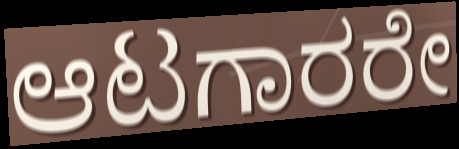
ಆಟಗಾರರೇ